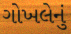
ગોખલેનું